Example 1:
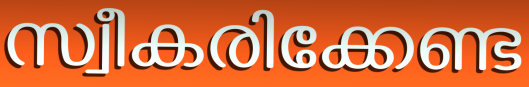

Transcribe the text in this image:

സ്വീകരിക്കേണ്ട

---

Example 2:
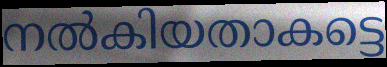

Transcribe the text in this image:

നൽകിയതാകട്ടെ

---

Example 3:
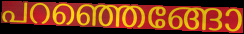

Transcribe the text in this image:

പറഞ്ഞെങ്ങോ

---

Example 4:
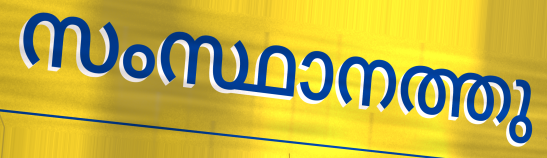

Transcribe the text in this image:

സംസ്ഥാനത്തു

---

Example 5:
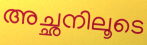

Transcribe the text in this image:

അച്ഛനിലൂടെ